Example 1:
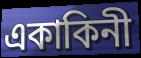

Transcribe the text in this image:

একাকিনী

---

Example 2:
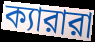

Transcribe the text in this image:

ক্যারারা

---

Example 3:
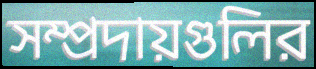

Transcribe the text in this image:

সম্প্রদায়গুলির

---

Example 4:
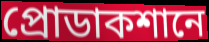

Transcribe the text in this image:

প্রোডাকশানে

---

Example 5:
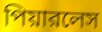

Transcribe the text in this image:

পিয়ারলেস